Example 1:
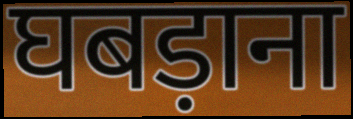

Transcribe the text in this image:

घबड़ाना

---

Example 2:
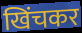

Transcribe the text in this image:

खिंचकर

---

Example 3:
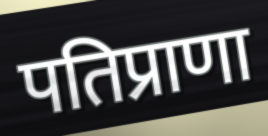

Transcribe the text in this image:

पतिप्राणा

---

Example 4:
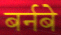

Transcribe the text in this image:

बर्नबे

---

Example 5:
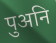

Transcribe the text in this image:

पुअनि